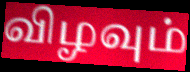
விழவும்